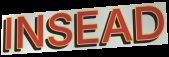
INSEAD